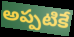
అప్పటికే